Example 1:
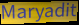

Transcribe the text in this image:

Maryadit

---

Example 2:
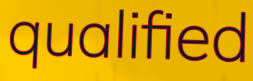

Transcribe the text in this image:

qualified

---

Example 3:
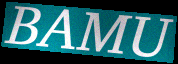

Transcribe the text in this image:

BAMU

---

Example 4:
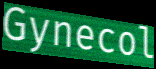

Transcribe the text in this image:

Gynecol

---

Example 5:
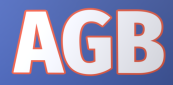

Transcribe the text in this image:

AGB